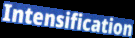
Intensification